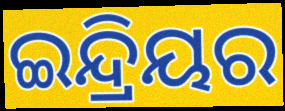
ଇନ୍ଦ୍ରିୟର